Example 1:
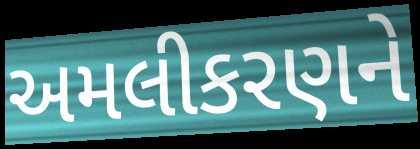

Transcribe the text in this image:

અમલીકરણને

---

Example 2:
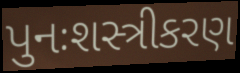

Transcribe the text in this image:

પુનઃશસ્ત્રીકરણ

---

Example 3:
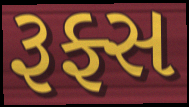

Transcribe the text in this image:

રૂફ્સ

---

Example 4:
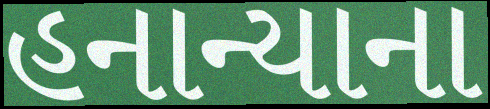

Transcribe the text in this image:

હનાન્યાના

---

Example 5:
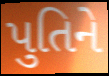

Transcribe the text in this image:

પુતિને